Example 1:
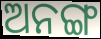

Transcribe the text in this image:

ଅନଙ୍ଗ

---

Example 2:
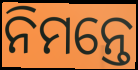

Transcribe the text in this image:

ନିମନ୍ତେ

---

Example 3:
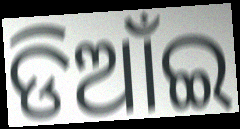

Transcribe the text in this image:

ଡିଆଁଇ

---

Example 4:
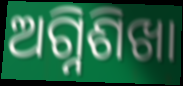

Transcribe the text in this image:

ଅଗ୍ନିଶିଖା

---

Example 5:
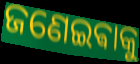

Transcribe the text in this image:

ଜଣେଇଵାକୁ